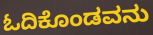
ಓದಿಕೊಂಡವನು